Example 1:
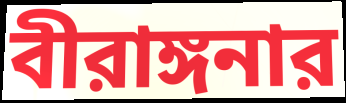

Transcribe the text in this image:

বীরাঙ্গনার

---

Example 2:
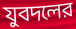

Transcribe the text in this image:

যুবদলের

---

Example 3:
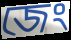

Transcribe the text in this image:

জেং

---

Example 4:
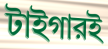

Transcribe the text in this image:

টাইগারই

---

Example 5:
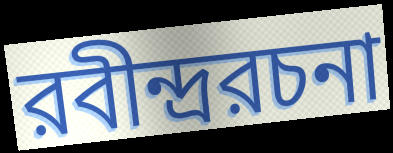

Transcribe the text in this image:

রবীন্দ্ররচনা